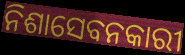
ନିଶାସେବନକାରୀ